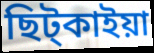
ছিট্কাইয়া